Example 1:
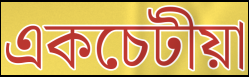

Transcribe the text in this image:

একচেটীয়া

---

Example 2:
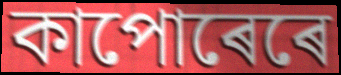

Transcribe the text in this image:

কাপোৰেৰে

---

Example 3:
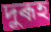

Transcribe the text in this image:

দুৰূহ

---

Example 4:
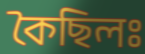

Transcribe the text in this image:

কৈছিলঃ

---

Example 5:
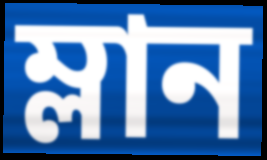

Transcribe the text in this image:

ম্লান